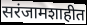
सरंजामशाहीत